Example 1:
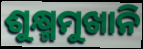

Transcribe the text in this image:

ଶୁକ୍ଷ୍ମମୁଖାନି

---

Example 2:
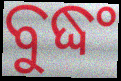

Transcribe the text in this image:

ବୁଦ୍ଧଂ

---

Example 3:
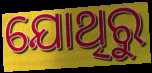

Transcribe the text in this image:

ଯୋଥିରୁ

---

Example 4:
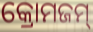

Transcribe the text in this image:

କ୍ରୋମଜମ୍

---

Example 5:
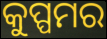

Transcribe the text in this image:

କୁପ୍ପମର